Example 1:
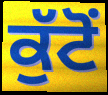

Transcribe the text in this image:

ਕੁੱਟੋਂ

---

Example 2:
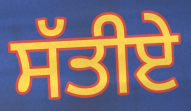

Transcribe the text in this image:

ਸੱਤੀਏ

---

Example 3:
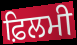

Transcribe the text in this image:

ਫ਼ਿਲਮੀ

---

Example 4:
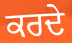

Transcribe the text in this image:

ਕਰਦੇ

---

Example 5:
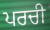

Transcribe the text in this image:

ਪਰਚੀ